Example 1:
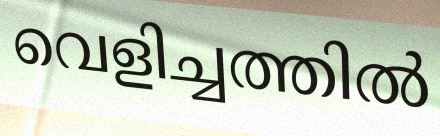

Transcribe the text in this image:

വെളിച്ചത്തിൽ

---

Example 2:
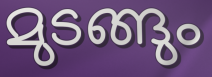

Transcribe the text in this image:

മുടങ്ങും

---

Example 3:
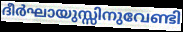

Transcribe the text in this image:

ദീർഘായുസ്സിനുവേണ്ടി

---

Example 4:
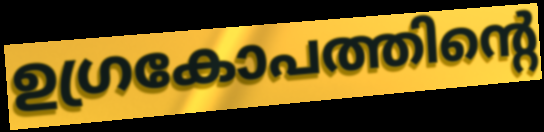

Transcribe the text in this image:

ഉഗ്രകോപത്തിന്റെ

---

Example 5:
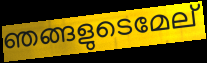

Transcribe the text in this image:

ഞങ്ങളുടെമേല്